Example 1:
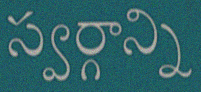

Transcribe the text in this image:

స్వర్గాన్ని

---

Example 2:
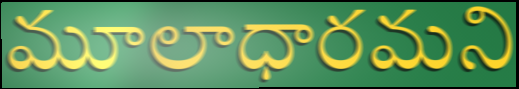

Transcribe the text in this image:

మూలాధారమని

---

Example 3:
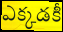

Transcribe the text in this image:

ఎక్కడకీ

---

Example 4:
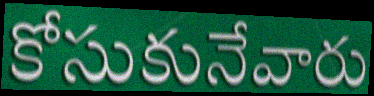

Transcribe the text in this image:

కోసుకునేవారు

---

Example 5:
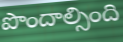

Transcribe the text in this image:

పొందాల్సింది